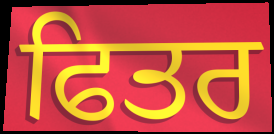
ਫਿਤਰ